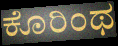
ಕೊರಿಂಥ